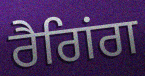
ਰੈਗਿਂਗ